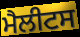
ਮੈਲੀਟਸ